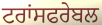
ਟਰਾਂਸਫਰੇਬਲ